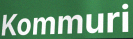
Kommuri